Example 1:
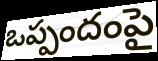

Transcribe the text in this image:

ఒప్పందంపై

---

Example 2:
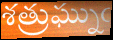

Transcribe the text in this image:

శత్రుఘ్నుఁ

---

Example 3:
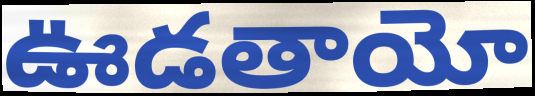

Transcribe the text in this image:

ఊడతాయో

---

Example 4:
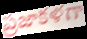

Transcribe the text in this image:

ప్రజాకళగా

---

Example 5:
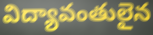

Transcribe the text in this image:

విద్యావంతులైన